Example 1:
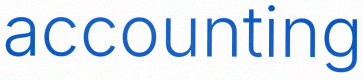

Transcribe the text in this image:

accounting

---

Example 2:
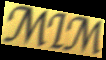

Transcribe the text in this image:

MIM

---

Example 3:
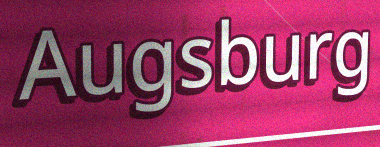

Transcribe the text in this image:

Augsburg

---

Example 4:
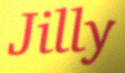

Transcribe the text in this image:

Jilly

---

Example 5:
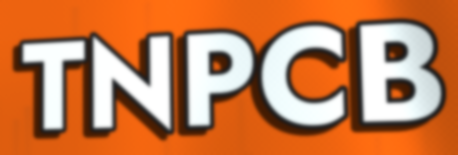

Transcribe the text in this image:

TNPCB